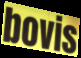
bovis